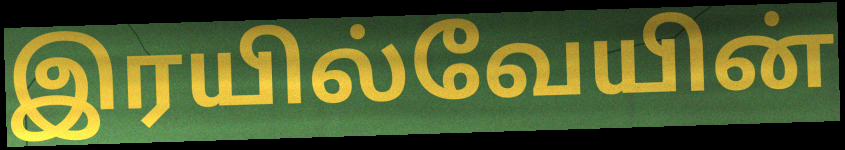
இரயில்வேயின்